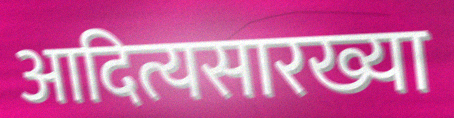
आदित्यसारख्या